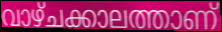
വാഴ്ചക്കാലത്താണ്